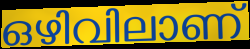
ഒഴിവിലാണ്